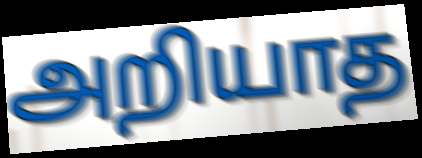
அறியாத